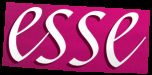
esse